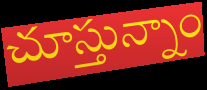
చూస్తున్నాం